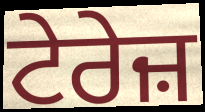
ਟੇਰੇਜ਼